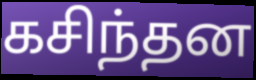
கசிந்தன